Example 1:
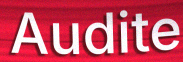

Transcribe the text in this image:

Audite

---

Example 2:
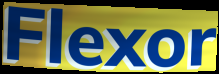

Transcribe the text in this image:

Flexor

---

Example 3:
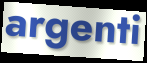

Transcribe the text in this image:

argenti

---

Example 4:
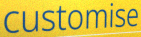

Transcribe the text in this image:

customise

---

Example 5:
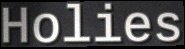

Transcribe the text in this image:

Holies